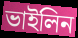
ভাইলিন